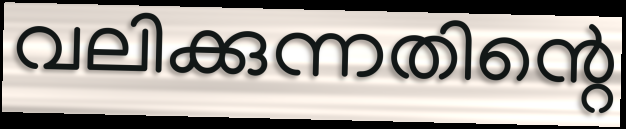
വലിക്കുന്നതിന്റെ